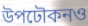
উপঢৌকনও